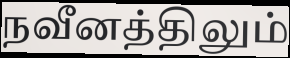
நவீனத்திலும்